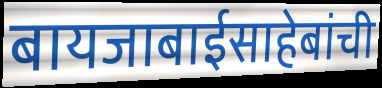
बायजाबाईसाहेबांची